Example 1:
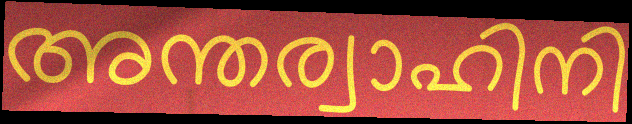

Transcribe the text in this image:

അന്തര്വാഹിനി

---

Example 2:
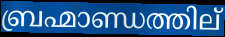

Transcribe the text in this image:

ബ്രഹ്മാണ്ഡത്തില്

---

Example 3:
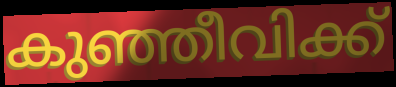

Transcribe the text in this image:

കുഞ്ഞീവിക്ക്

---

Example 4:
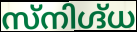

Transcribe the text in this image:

സ്നിഗ്ദ്ധ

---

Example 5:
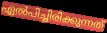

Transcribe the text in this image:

ഏൽപിച്ചിരിക്കുന്നത്